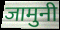
जामुनी